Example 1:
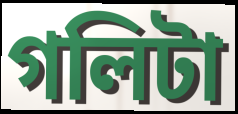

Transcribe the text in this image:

গলিটা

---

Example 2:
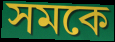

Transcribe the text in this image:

সমকে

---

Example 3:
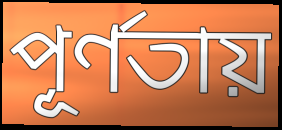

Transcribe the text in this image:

পূর্ণতায়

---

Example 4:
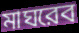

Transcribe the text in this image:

মাঘরেব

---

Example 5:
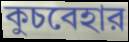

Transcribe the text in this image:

কুচবেহার